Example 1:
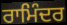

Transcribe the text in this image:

ਰਾਮਿੰਦਰ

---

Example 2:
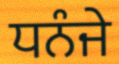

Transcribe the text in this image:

ਧਨੰਜੇ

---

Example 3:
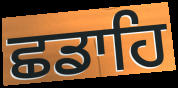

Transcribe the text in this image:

ਛਡਾਹਿ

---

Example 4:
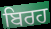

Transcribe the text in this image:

ਬਿਰਹ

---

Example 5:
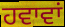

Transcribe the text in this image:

ਹਵਾਵਾਂ